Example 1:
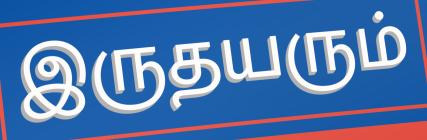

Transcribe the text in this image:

இருதயரும்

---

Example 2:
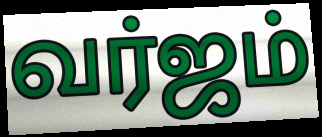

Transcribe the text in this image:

வர்ஜம்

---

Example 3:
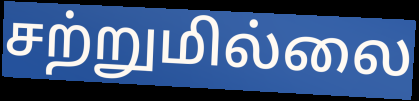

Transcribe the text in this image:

சற்றுமில்லை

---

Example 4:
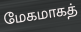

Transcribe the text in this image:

மேகமாகத்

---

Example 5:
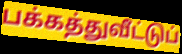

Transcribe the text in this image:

பக்கத்துவீட்டுப்